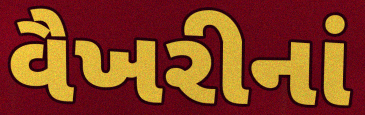
વૈખરીનાં